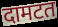
दामटत